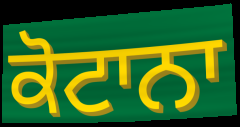
ਕੋਟਾਨਾ